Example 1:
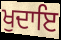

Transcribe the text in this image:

ਖੁਦਾਇ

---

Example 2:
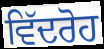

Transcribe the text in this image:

ਵਿੱਦਰੋਹ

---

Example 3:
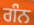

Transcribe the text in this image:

ਗੰਨ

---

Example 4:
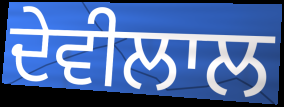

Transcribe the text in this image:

ਦੇਵੀਲਾਲ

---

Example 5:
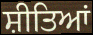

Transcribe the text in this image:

ਸ਼ੀਤਿਆਂ